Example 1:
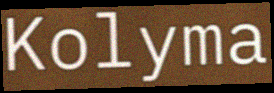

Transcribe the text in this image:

Kolyma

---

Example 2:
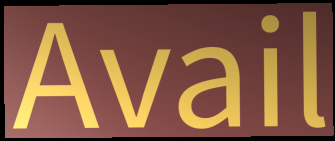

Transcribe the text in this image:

Avail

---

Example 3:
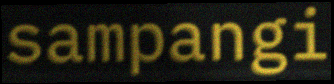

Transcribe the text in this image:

sampangi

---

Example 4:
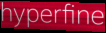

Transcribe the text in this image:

hyperfine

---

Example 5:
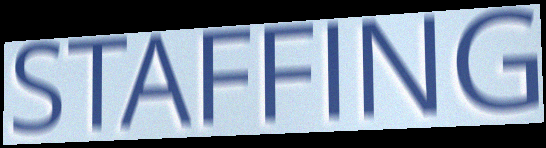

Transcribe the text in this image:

STAFFING